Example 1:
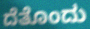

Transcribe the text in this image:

ದೆತೊಂದು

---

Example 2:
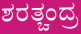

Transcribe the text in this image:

ಶರತ್ಚಂದ್ರ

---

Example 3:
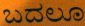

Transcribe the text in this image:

ಬದಲೂ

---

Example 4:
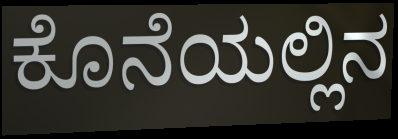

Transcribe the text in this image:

ಕೊನೆಯಲ್ಲಿನ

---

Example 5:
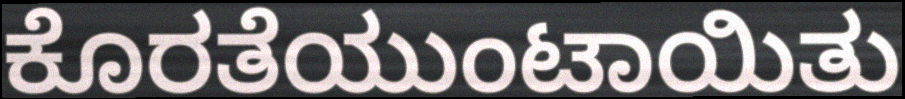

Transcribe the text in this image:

ಕೊರತೆಯುಂಟಾಯಿತು